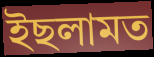
ইছলামত